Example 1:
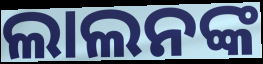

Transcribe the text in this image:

ଲାଲନଙ୍କ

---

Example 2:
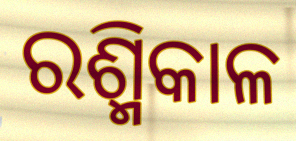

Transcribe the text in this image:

ରଶ୍ମିକାଳ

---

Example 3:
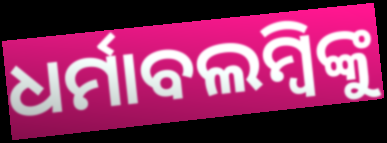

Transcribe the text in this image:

ଧର୍ମାବଲମ୍ବିଙ୍କୁ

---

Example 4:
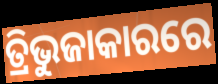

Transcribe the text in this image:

ତ୍ରିଭୁଜାକାରରେ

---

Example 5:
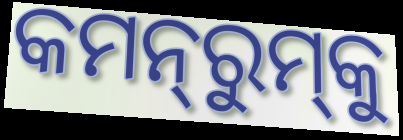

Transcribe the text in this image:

କମନ୍‍ରୁମ୍‍କୁ